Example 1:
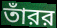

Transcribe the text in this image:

তাঁরর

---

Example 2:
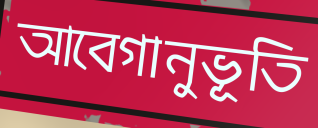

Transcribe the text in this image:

আবেগানুভূতি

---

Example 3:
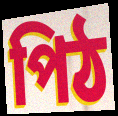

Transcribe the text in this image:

পিঠ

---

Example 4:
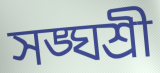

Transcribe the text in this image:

সঙ্ঘশ্রী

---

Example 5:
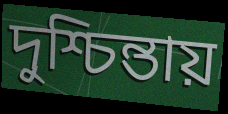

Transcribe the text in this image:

দুশ্চিন্তায়